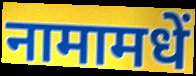
नामामधें